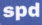
spd